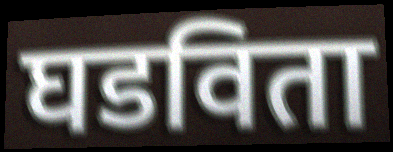
घडविता